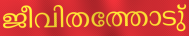
ജീവിതത്തോടു്